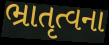
ભ્રાતૃત્વના